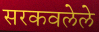
सरकवलेले